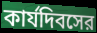
কার্যদিবসের